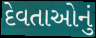
દેવતાઓનું